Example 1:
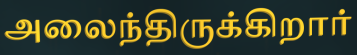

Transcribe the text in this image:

அலைந்திருக்கிறார்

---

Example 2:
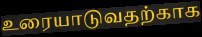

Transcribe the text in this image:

உரையாடுவதற்காக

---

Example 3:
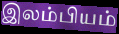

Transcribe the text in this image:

இலம்பியம்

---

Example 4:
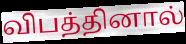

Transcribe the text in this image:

விபத்தினால்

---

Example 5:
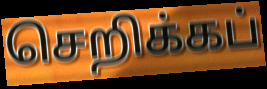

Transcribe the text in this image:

செறிக்கப்